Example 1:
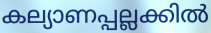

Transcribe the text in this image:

കല്യാണപ്പല്ലക്കിൽ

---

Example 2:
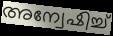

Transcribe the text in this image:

അന്വേഷിച്ച്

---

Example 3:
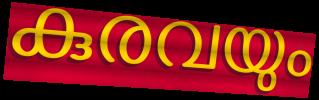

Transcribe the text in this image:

കുരവയും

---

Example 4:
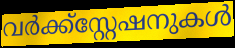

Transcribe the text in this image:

വർക്ക്സ്റ്റേഷനുകൾ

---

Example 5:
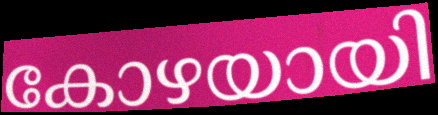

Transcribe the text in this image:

കോഴയായി